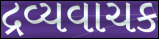
દ્રવ્યવાચક